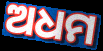
ଅଧମ